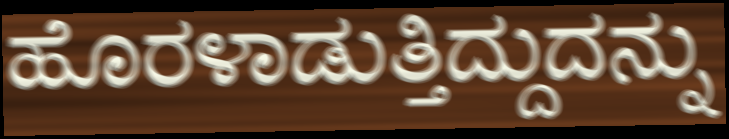
ಹೊರಳಾಡುತ್ತಿದ್ದುದನ್ನು